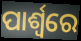
ପାର୍ଶ୍ଵରେ